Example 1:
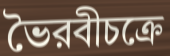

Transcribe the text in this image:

ভৈরবীচক্রে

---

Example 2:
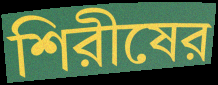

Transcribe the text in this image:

শিরীষের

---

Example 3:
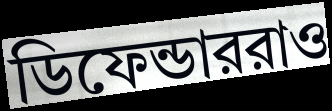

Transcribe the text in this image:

ডিফেন্ডাররাও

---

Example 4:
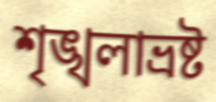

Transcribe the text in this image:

শৃঙ্খলাভ্রষ্ট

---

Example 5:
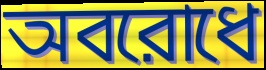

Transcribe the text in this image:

অবরোধে